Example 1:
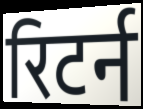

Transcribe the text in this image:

रिटर्न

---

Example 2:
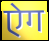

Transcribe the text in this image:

ऐग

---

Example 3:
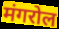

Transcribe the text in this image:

मंगरोल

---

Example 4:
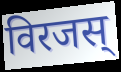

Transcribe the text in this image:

विरजस्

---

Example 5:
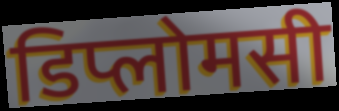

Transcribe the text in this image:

डिप्लोमसी